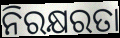
ନିରକ୍ଷରତା